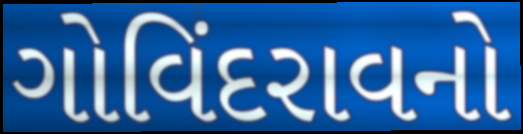
ગોવિંદરાવનો